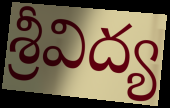
శ్రీవిద్య